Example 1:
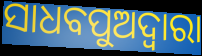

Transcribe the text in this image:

ସାଧବପୁଅଦ୍ୱାରା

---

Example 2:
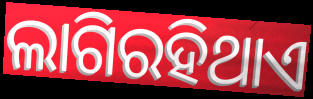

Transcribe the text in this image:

ଲାଗିରହିଥାଏ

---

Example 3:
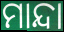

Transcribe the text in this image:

ମାନ୍ଦା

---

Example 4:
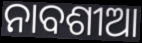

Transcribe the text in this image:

ନାବଶୀଆ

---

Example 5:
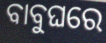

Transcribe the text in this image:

ବାବୁଘରେ